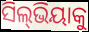
ସିଲ୍‍ଭିୟାକୁ